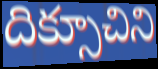
దిక్సూచిని